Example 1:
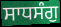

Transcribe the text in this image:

ਸਾਧਸੰਗੁ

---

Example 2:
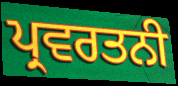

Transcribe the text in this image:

ਪ੍ਰਵਰਤਨੀ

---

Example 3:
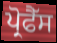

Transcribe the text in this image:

ਪ੍ਰੋਫੈੱਸ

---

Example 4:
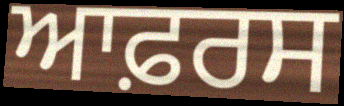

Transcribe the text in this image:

ਆਫ਼ਰਸ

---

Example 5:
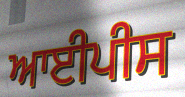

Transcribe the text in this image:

ਆਈਪੀਸ